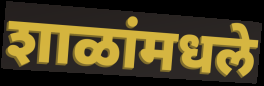
शाळांमधले